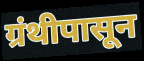
ग्रंथीपासून